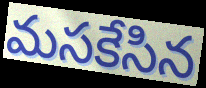
మసకేసిన